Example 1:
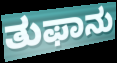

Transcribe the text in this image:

ತುಫಾನು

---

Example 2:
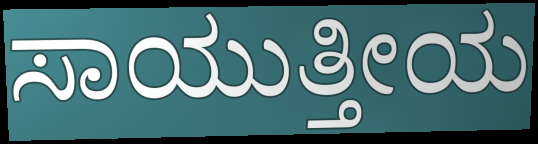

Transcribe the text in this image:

ಸಾಯುತ್ತೀಯ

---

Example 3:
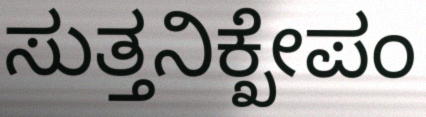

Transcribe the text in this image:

ಸುತ್ತನಿಕ್ಖೇಪಂ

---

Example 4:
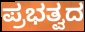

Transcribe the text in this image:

ಪ್ರಭತ್ವದ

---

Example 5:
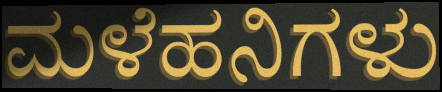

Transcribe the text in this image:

ಮಳೆಹನಿಗಳು